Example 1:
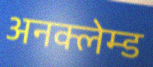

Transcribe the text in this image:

अनक्लेम्ड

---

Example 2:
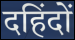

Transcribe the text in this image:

दहिंदों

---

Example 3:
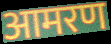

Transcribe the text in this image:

आमरण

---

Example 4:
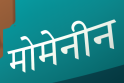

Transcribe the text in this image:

मोमेनीन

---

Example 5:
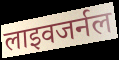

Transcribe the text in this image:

लाइवजर्नल